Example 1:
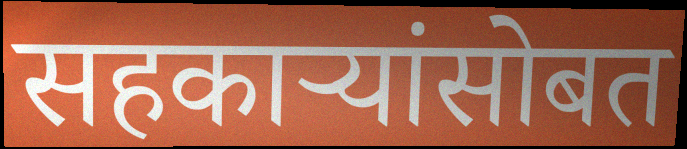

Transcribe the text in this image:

सहकाऱ्यांसोबत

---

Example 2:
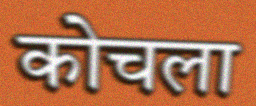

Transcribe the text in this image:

कोचला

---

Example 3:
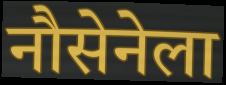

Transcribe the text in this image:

नौसेनेला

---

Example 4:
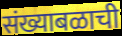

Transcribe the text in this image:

संख्याबळाची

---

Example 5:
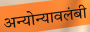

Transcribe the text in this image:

अन्योन्यावलंबी